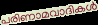
പരിണാമവാദികൾ